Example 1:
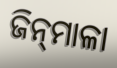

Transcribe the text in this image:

ଜିନ୍‌ମାଳା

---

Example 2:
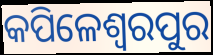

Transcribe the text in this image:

କପିଳେଶ୍ୱରପୁର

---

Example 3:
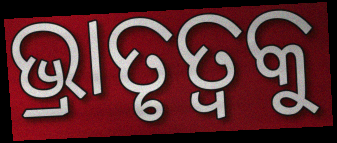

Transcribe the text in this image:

ଭ୍ରାତୃତ୍ୱକୁ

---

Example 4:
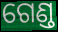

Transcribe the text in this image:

ଗେଣ୍ଡ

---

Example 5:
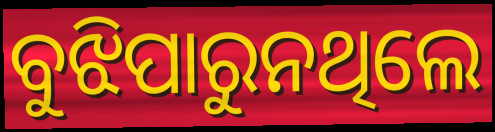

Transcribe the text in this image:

ବୁଝିପାରୁନଥିଲେ